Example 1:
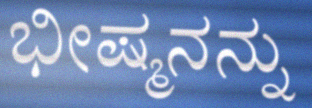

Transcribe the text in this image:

ಭೀಷ್ಮನನ್ನು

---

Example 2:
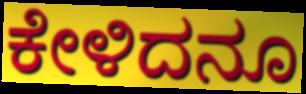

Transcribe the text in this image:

ಕೇಳಿದನೂ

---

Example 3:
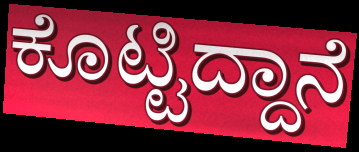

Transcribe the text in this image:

ಕೊಟ್ಟಿದ್ದಾನೆ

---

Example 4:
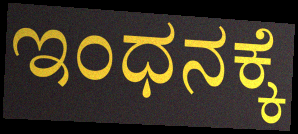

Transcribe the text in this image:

ಇಂಧನಕ್ಕೆ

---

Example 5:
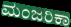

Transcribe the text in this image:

ಮಂಜರಿಕಾ